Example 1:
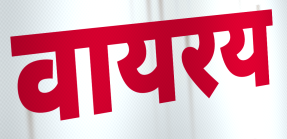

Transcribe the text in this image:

वायरय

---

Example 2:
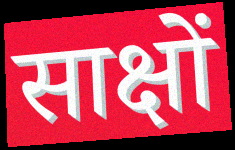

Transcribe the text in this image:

साक्षों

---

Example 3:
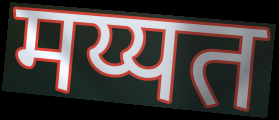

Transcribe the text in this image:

मय्यत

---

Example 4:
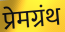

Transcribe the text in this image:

प्रेमग्रंथ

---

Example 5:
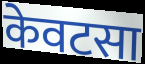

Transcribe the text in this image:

केवटसा